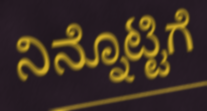
ನಿನ್ನೊಟ್ಟಿಗೆ